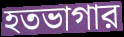
হতভাগার